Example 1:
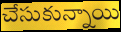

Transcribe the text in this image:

చేసుకున్నాయి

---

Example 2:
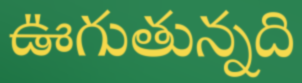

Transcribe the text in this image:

ఊగుతున్నది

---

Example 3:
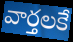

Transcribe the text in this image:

వార్తలకే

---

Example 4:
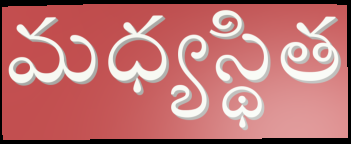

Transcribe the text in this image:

మధ్యస్థిత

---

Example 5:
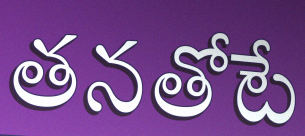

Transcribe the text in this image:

తనతోటే